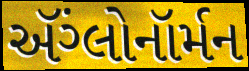
ઍંગ્લોનૉર્મન